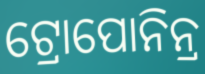
ଟ୍ରୋପୋନିନ୍ର